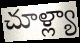
చూళ్ల్యా